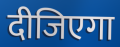
दीजिएगा